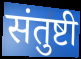
संतुष्टी